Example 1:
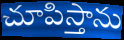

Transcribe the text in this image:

చూపిస్తాను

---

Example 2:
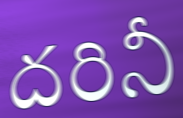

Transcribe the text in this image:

దరినీ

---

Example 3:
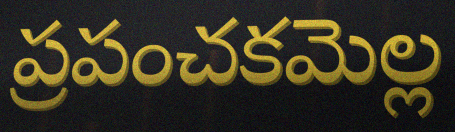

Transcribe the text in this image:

ప్రపంచకమెల్ల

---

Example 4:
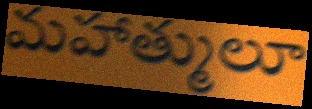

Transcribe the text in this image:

మహాత్ములూ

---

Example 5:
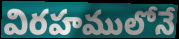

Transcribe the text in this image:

విరహములోనే